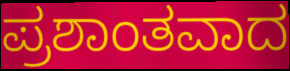
ಪ್ರಶಾಂತವಾದ